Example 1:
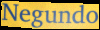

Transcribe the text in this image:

Negundo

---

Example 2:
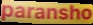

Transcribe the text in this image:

paransho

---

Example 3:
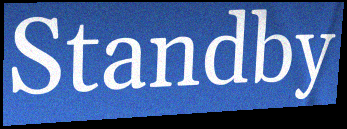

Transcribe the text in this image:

Standby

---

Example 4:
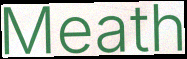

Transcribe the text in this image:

Meath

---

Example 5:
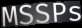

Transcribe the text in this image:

MSSPs